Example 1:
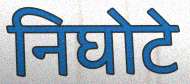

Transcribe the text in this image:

निघोटे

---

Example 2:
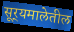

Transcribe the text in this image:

सूर्यमालेतील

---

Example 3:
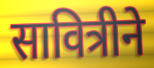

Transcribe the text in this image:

सावित्रीने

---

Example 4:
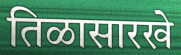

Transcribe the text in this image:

तिळासारखे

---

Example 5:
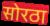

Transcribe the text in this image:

सोरठा